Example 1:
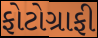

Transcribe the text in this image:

ફોટોગ્રાફી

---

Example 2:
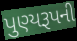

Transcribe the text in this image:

પુણ્યરૂપની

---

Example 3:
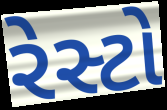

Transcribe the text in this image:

રેસ્ટો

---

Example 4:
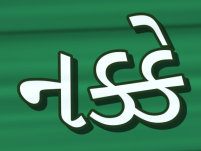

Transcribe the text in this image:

નક્કે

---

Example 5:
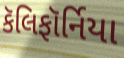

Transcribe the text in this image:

કૅલિફૉર્નિયા